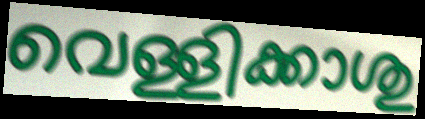
വെള്ളിക്കാശു